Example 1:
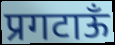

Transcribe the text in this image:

प्रगटाऊँ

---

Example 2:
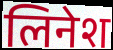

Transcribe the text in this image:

लिनेश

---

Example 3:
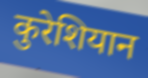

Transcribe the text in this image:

कुरेशियान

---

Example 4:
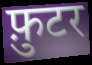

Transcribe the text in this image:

फ़ुटर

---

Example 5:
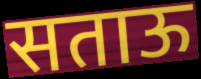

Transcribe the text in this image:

सताऊ